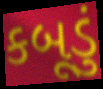
કબૂડું